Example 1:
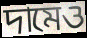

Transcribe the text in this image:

দামেও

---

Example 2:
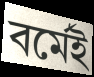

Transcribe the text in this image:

বর্মেই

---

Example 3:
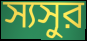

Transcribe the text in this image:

স্যসুর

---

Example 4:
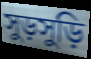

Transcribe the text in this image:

সুড়সুড়ি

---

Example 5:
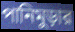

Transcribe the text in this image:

পানিমুড়ার